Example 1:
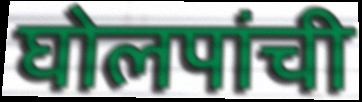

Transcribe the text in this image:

घोलपांची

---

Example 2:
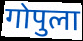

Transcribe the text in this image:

गोपुला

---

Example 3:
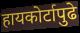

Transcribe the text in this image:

हायकोर्टापुढे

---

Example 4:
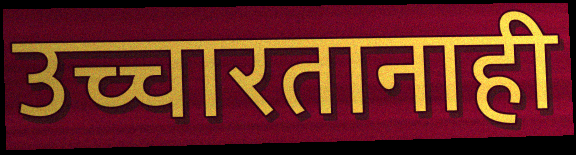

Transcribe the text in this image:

उच्चारतानाही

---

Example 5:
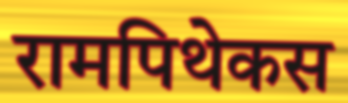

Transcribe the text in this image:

रामपिथेकस